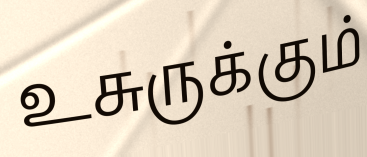
உசுருக்கும்